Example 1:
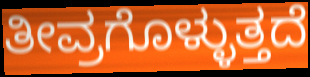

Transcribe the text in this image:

ತೀವ್ರಗೊಳ್ಳುತ್ತದೆ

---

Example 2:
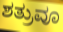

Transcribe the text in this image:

ಶತ್ರುವೂ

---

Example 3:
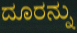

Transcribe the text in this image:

ದೂರನ್ನು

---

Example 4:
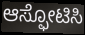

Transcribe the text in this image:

ಆಸ್ಫೋಟಿಸಿ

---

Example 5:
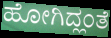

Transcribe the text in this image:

ಹೋಗಿದ್ಲಂತೆ